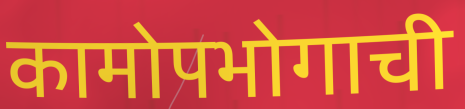
कामोपभोगाची